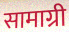
सामाग्री